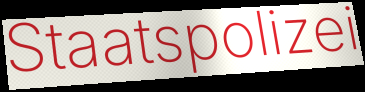
Staatspolizei